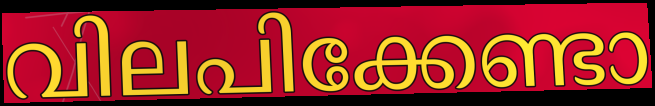
വിലപിക്കേണ്ടാ